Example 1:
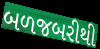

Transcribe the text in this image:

બળજબરીથી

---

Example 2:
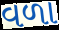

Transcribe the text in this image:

વળા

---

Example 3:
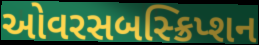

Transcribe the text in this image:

ઓવરસબસ્ક્રિપ્શન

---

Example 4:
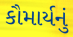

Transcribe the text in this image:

કૌમાર્યનું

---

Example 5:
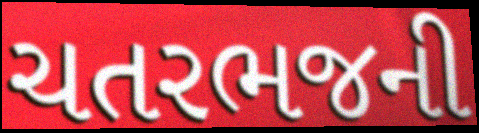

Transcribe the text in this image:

ચતરભજની